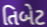
તિબેટ